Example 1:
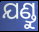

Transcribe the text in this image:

ଯଣ୍ଡୁ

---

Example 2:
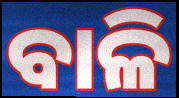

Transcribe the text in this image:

ବାଳି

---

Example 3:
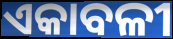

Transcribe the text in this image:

ଏକାବଳୀ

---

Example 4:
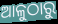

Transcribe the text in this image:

ଆଳୁଠାରୁ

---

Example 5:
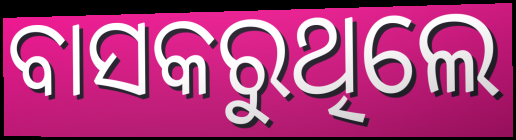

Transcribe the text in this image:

ବାସକରୁଥିଲେ